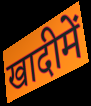
खादीमें